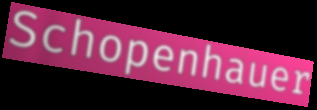
Schopenhauer